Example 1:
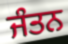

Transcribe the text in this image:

ਜੰਤਨ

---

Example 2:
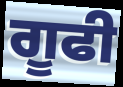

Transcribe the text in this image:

ਗੂਫੀ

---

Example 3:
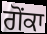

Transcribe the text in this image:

ਗੋਂਕਾ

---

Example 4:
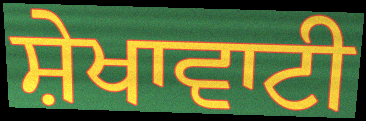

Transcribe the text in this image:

ਸ਼ੇਖਾਵਾਟੀ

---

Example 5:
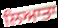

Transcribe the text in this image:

ਲਿਆਤਾ